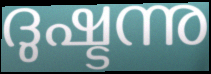
ദുഷ്ടന്നു